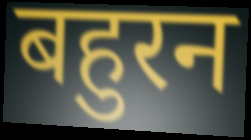
बहुरन